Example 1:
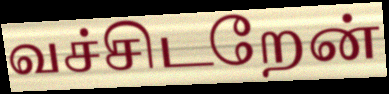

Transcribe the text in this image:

வச்சிடறேன்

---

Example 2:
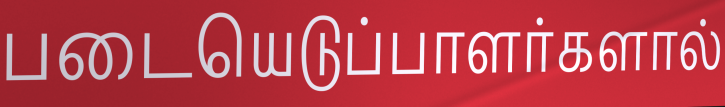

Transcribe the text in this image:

படையெடுப்பாளர்களால்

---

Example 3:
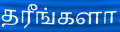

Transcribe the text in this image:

தரீங்களா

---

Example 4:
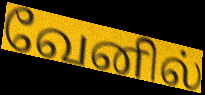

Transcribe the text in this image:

வேனில்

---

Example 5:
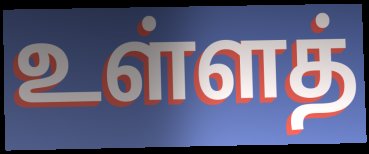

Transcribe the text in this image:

உள்ளத்